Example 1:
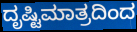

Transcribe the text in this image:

ದೃಷ್ಟಿಮಾತ್ರದಿಂದ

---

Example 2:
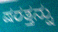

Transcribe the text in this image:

ಷರತ್ತನ್ನು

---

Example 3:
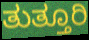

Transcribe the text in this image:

ತುತ್ತೂರಿ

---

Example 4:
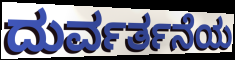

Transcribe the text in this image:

ದುರ್ವರ್ತನೆಯ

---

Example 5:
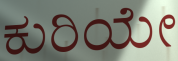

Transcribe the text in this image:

ಕುರಿಯೇ